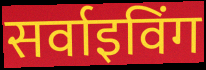
सर्वाइविंग